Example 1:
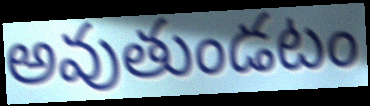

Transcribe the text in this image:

అవుతుండటం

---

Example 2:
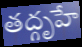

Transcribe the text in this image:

తద్గృహే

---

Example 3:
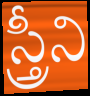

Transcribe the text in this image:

స్త్రీని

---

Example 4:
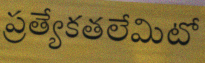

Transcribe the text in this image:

ప్రత్యేకతలేమిటో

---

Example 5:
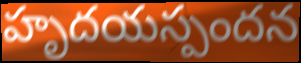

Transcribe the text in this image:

హృదయస్పందన